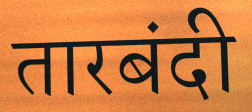
तारबंदी